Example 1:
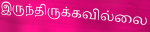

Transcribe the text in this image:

இருந்திருக்கவில்லை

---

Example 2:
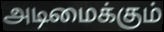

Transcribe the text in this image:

அடிமைக்கும்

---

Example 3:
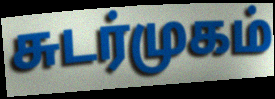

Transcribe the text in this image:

சுடர்முகம்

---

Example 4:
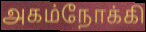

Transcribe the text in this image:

அகம்நோக்கி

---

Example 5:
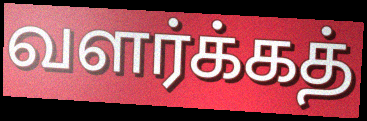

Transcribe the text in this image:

வளர்க்கத்